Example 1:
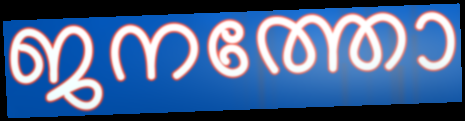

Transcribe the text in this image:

ജനത്തോ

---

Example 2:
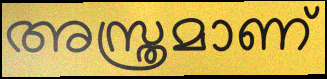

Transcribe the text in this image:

അസ്ത്രമാണ്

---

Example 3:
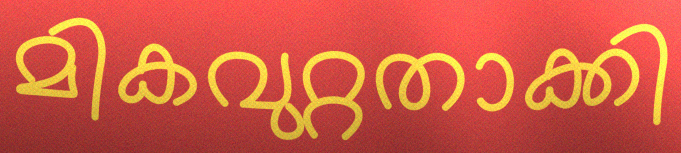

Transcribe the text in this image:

മികവുറ്റതാക്കി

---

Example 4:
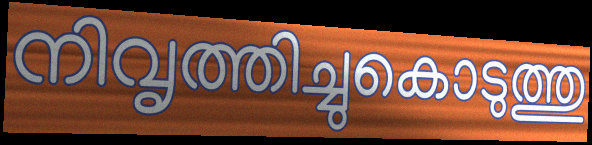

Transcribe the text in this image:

നിവൃത്തിച്ചുകൊടുത്തു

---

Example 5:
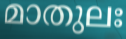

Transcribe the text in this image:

മാതുലഃ